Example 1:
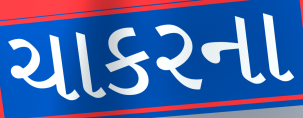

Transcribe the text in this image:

ચાકરના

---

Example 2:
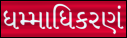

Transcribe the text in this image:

ધમ્માધિકરણં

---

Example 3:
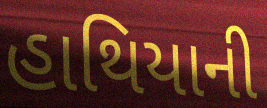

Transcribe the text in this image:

હાથિયાની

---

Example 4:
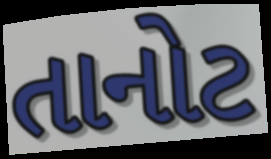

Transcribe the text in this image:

તાનોટ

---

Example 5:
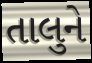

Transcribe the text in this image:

તાલુને